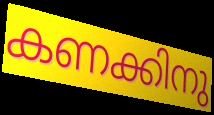
കണക്കിനു